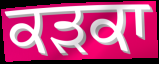
ਕੜਕਾ